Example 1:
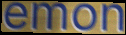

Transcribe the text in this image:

emon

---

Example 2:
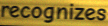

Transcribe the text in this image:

recognizes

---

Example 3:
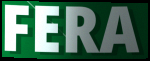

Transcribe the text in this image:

FERA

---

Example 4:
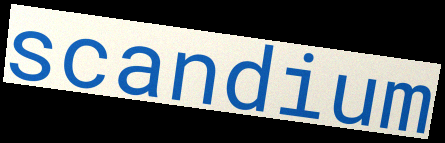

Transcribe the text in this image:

scandium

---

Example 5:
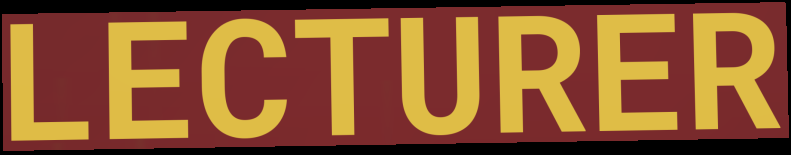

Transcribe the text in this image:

LECTURER